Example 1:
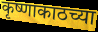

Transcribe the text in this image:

कृष्णाकाठच्या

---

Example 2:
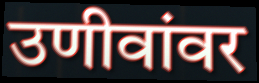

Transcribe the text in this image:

उणीवांवर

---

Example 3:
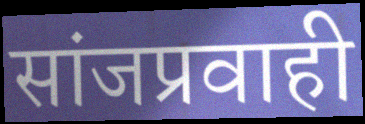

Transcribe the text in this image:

सांजप्रवाही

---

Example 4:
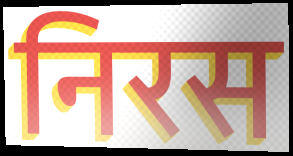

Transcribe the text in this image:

निरस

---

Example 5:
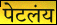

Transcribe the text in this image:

पेटलंय